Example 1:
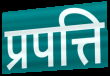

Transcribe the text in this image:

प्रपत्ति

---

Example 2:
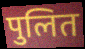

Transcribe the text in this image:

पुलित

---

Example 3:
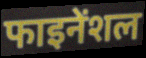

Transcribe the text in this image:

फाइनेंशल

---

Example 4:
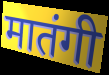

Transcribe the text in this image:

मातंगी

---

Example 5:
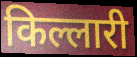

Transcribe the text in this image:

किल्लारी